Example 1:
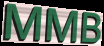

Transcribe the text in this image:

MMB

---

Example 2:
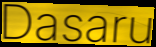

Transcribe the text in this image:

Dasaru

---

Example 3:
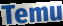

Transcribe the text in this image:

Temu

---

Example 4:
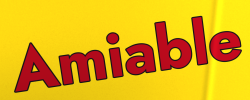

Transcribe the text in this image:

Amiable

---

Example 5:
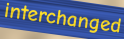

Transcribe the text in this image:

interchanged